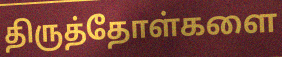
திருத்தோள்களை